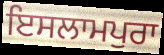
ਇਸਲਾਮਪੁਰਾ